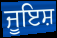
ਜੂਇਸ਼